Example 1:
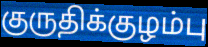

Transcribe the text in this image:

குருதிக்குழம்பு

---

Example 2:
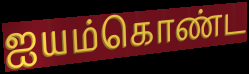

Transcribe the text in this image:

ஐயம்கொண்ட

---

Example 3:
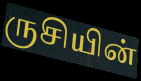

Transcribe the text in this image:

ருசியின்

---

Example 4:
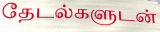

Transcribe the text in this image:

தேடல்களுடன்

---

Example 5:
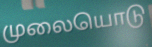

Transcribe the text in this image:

முலையொடு